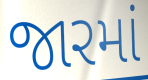
જારમાં